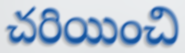
చరియించి